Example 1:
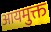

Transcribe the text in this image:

आयमुक्त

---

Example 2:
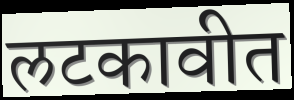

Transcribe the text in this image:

लटकावीत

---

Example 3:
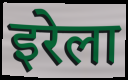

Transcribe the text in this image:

इरेला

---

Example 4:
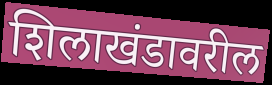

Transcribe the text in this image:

शिलाखंडावरील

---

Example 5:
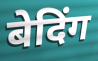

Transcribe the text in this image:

बेदिंग